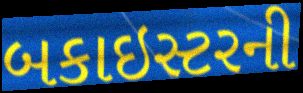
બકાઇસ્ટરની